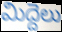
మిద్దెలు